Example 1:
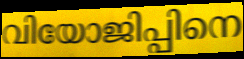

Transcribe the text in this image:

വിയോജിപ്പിനെ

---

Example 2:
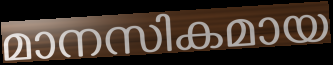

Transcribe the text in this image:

മാനസികമായ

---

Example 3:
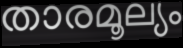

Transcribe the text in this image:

താരമൂല്യം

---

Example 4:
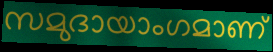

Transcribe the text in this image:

സമുദായാംഗമാണ്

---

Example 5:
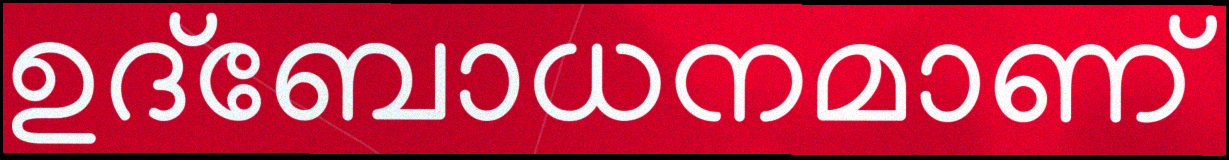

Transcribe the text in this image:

ഉദ്ബോധനമാണ്